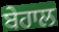
ਬੇਹਾਲ